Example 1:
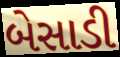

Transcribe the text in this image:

બેસાડી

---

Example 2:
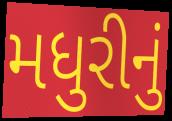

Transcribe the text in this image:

મધુરીનું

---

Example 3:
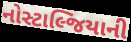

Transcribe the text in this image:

નોસ્ટાલ્જિયાની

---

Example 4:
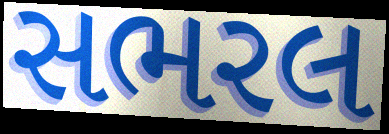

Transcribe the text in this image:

સભરલ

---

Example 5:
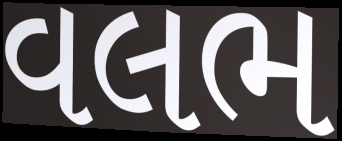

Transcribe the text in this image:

વલભ